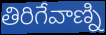
తిరిగేవాణ్ని